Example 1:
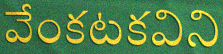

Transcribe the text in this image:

వేంకటకవిని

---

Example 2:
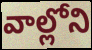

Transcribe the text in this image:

వాల్లోని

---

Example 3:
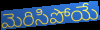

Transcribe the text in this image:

మెరిసిపోయే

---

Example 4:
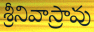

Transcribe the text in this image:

శ్రీనివాస్రావు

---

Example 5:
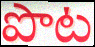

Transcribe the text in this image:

పొట